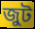
জুট